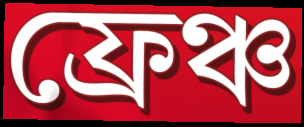
ফ্রেঞ্চ